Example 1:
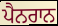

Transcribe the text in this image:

ਪੈਨਰਾਨ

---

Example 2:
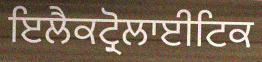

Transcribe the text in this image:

ਇਲੈਕਟ੍ਰੋਲਾਈਟਿਕ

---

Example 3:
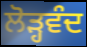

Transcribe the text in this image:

ਲੋੜ੍ਹਵੰਦ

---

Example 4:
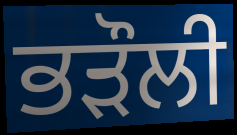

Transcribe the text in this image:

ਭੜੌਲੀ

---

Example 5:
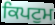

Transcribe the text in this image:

ਕਿਪਟੁਮ